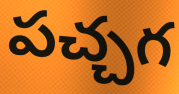
పచ్చగ